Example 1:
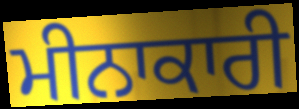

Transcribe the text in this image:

ਮੀਨਾਕਾਰੀ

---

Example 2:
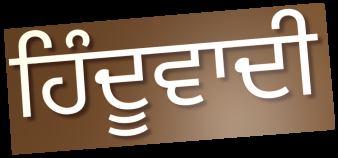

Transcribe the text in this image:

ਹਿੰਦੂਵਾਦੀ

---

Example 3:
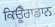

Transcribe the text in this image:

ਕਿਊੈਰਾਡਾਨ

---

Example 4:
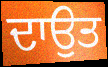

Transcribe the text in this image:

ਦਾਉਤ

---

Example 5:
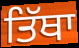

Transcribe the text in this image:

ਤਿੱਥਾ